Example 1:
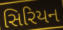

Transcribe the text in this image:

સિરિયન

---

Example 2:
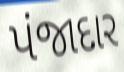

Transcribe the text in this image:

પંજાદાર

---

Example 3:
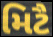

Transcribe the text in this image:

મિટૈ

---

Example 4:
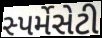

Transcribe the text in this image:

સ્પર્મેસેટી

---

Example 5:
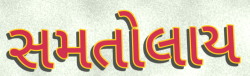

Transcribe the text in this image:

સમતોલાય